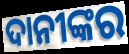
ଦାନୀଙ୍କର